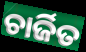
ଚାର୍ଜିତ